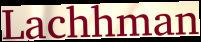
Lachhman